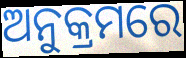
ଅନୁକ୍ରମରେ